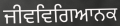
ਜੀਵਵਿਗਿਆਨਕ